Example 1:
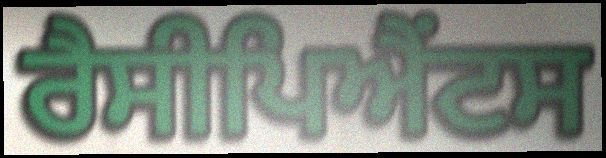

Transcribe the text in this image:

ਰੈਸੀਪਿਐਂਟਸ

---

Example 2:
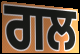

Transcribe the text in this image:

ਗਲ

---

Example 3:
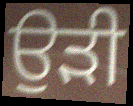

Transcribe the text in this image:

ਉਡ਼ੀ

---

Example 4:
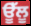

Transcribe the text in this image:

ਊੱਲੂ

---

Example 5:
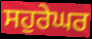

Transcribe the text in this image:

ਸਹੁਰੇਘਰ